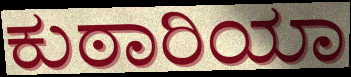
ಕುಠಾರಿಯಾ